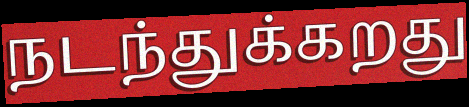
நடந்துக்கறது